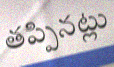
తప్పినట్లు